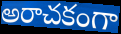
అరాచకంగా